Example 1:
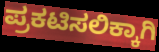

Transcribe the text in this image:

ಪ್ರಕಟಿಸಲಿಕ್ಕಾಗಿ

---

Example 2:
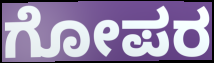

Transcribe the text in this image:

ಗೋಪರ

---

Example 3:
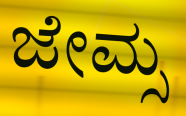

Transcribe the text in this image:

ಜೇಮ್ಸ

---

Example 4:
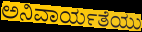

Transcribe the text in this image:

ಅನಿವಾರ್ಯತೆಯು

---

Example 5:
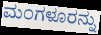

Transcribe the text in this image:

ಮಂಗಳೂರನ್ನು